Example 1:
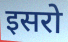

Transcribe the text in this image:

इसरो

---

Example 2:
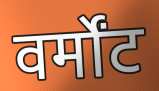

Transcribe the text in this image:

वर्मोंट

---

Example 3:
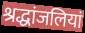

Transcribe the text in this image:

श्रद्धांजलियां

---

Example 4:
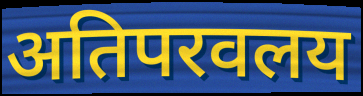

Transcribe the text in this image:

अतिपरवलय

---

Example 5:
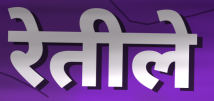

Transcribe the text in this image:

रेतीले